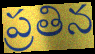
ప్రతిన